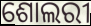
ଶୋଲରୀ